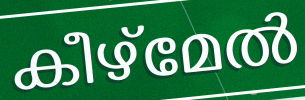
കീഴ്മേൽ